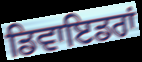
ਡਿਵਾਇਡਰਾਂ